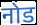
नोड